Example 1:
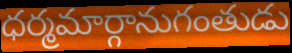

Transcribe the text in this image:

ధర్మమార్గానుగంతుడు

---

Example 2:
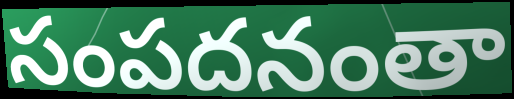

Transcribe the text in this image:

సంపదనంతా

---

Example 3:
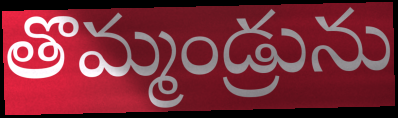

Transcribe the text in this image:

తొమ్మండ్రును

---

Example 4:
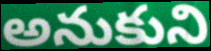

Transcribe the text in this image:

అనుకుని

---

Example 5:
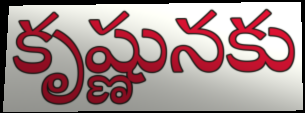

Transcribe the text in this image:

కృష్ణునకు